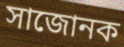
সাজোনক